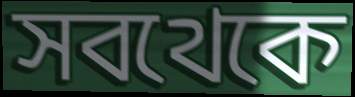
সবথেকে